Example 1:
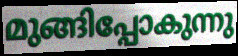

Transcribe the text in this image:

മുങ്ങിപ്പോകുന്നു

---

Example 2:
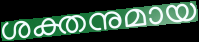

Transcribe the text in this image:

ശക്തനുമായ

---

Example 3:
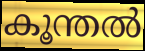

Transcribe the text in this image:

കൂന്തൽ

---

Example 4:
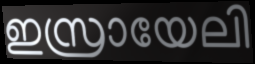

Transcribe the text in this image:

ഇസ്രായേലി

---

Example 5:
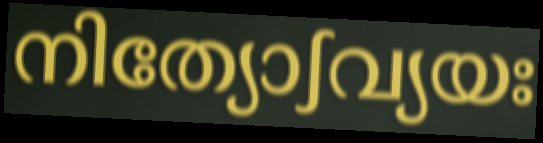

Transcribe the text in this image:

നിത്യോഽവ്യയഃ